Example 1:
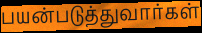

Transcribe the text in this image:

பயன்படுத்துவார்கள்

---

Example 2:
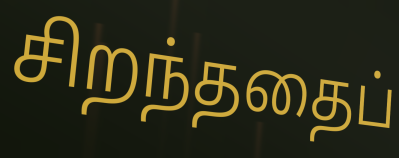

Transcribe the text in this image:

சிறந்ததைப்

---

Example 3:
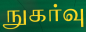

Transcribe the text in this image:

நுகர்வு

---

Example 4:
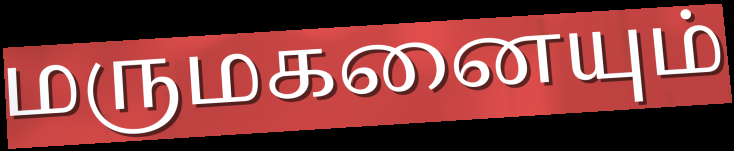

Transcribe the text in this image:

மருமகனையும்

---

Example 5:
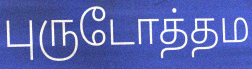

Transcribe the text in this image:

புருடோத்தம